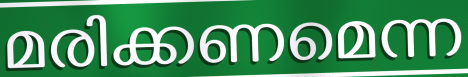
മരിക്കണമെന്ന